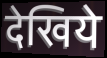
देखिये